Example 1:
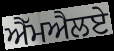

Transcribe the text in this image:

ਐੱਮਐਲਏ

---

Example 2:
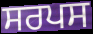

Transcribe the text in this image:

ਸਰਪਸ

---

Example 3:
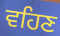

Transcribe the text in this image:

ਵਹਿਣ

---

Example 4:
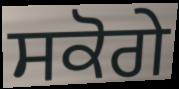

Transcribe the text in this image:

ਸਕੋਗੇ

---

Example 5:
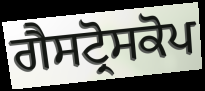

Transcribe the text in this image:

ਗੈਸਟ੍ਰੋਸਕੋਪ